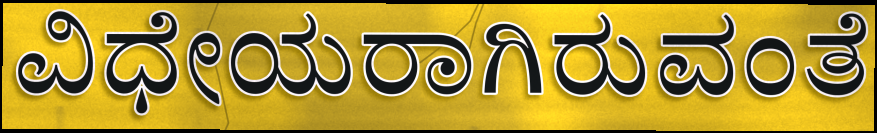
ವಿಧೇಯರಾಗಿರುವಂತೆ